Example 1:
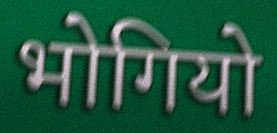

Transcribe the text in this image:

भोगियो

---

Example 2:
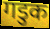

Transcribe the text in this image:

गडुक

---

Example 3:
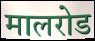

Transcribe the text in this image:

मालरोड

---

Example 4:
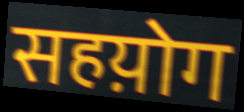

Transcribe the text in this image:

सहय़ोग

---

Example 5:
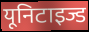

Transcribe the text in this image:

यूनिटाइज्ड